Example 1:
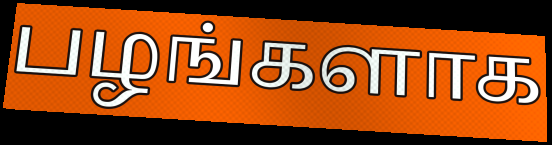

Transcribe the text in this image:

பழங்களாக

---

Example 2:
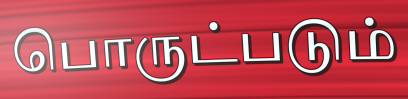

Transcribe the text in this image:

பொருட்படும்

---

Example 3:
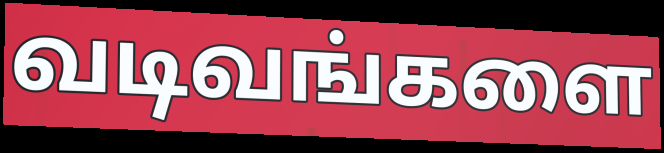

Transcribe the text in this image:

வடிவங்களை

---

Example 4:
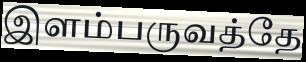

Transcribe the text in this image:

இளம்பருவத்தே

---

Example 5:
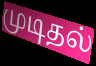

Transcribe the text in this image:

முடிதல்